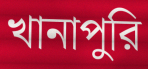
খানাপুরি